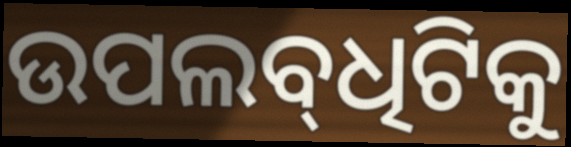
ଉପଲବ୍‌ଧିଟିକୁ